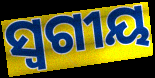
ସ୍ୱଗୀୟ